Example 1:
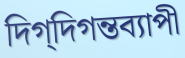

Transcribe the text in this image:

দিগ্‌দিগন্তব্যাপী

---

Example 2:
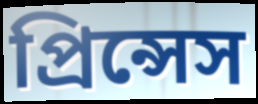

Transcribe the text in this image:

প্রিন্সেস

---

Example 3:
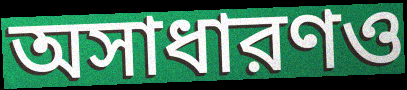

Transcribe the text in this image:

অসাধারণও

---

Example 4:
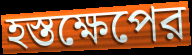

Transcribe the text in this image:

হস্তক্ষেপের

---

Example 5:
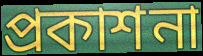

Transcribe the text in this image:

প্রকাশনা